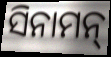
ସିନାମନ୍